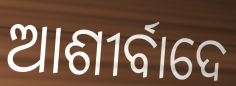
ଆଶୀର୍ବାଦେ